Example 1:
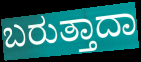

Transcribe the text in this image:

ಬರುತ್ತಾದಾ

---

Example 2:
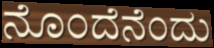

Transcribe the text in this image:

ನೊಂದೆನೆಂದು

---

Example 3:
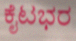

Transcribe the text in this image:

ಕೈಟಭರ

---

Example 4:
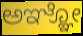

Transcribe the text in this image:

ಅಞ್ಞೋ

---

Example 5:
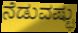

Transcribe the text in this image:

ನೆಡುವಷ್ಟು